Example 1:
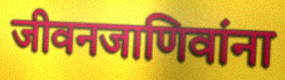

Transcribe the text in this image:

जीवनजाणिवांना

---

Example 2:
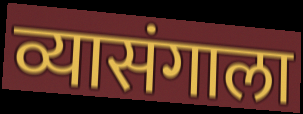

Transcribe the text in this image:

व्यासंगाला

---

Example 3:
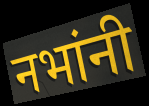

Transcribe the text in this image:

नभांनी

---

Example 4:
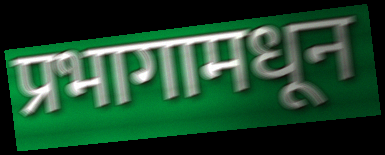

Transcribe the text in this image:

प्रभागामधून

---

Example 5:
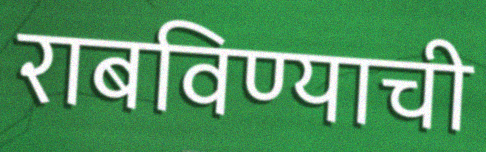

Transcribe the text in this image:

राबविण्याची